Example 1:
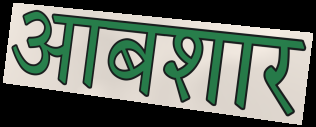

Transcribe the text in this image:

आबशार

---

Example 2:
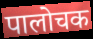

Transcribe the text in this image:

पालोचक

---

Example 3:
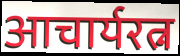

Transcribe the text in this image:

आचार्यरत्न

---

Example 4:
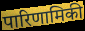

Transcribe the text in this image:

पारिणामिकी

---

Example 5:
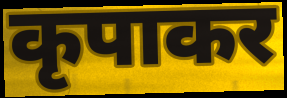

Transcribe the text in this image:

कृपाकर